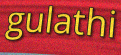
gulathi